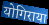
योगिराया